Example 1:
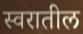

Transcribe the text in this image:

स्वरातील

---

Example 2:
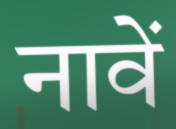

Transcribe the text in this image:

नावें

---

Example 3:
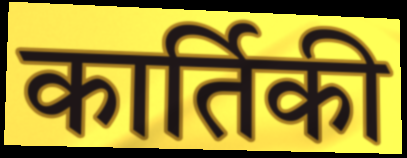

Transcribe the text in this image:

कार्तिकी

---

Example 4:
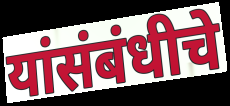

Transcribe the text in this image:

यांसंबंधीचे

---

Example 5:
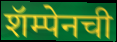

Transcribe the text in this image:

शॅम्पेनची